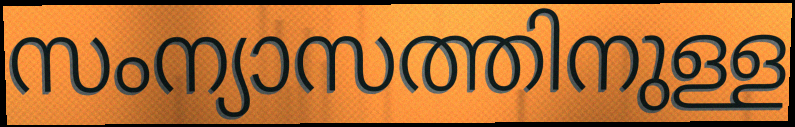
സംന്യാസത്തിനുള്ള